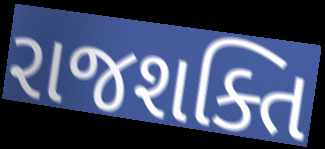
રાજશક્તિ